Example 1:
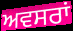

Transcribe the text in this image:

ਅਵਸਰਾਂ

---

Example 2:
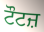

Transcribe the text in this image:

ਟੌਟਜ਼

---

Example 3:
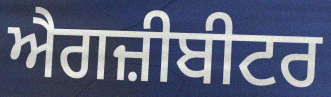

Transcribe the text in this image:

ਐਗਜ਼ੀਬੀਟਰ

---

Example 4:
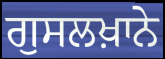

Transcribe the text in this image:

ਗੁਸਲਖ਼ਾਨੇ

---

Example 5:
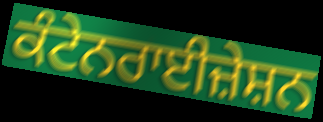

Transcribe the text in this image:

ਕੰਟੇਨਰਾਈਜ਼ੇਸ਼ਨ